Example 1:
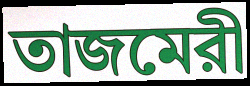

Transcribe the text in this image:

তাজমেরী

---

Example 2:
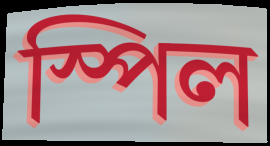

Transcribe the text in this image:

স্পিল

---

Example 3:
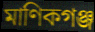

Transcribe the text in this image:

মাণিকগঞ্জ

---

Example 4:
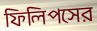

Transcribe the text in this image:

ফিলিপসের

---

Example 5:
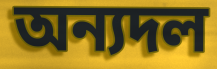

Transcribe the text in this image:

অন্যদল